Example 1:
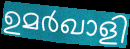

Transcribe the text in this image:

ഉമർഖാളി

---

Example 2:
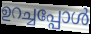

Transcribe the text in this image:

ഉറച്ചപ്പോൾ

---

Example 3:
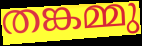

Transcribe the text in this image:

തങ്കമ്മു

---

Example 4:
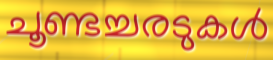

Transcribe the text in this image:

ചൂണ്ടച്ചരടുകൾ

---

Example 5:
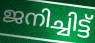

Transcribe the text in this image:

ജനിച്ചിട്ട്